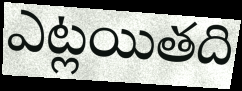
ఎట్లయితది